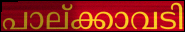
പാല്ക്കാവടി